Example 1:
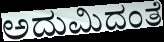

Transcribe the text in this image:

ಅದುಮಿದಂತೆ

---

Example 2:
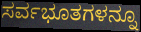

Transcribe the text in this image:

ಸರ್ವಭೂತಗಳನ್ನೂ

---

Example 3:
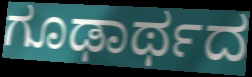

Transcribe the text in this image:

ಗೂಢಾರ್ಥದ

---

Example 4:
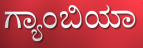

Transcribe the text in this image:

ಗ್ಯಾಂಬಿಯಾ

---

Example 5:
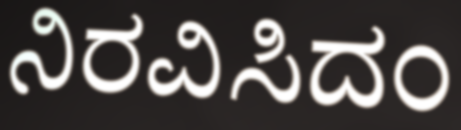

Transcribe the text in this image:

ನಿರವಿಸಿದಂ